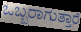
ಒಬ್ಬರಾಗುತ್ತಾರೆ